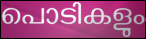
പൊടികളും